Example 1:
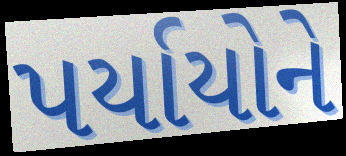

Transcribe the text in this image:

પર્યાયોને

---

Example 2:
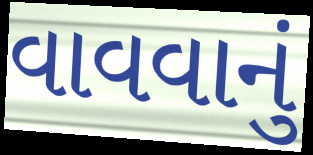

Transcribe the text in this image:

વાવવાનું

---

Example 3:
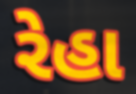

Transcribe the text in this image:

રેહા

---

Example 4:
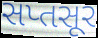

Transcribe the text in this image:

સપ્તસૂર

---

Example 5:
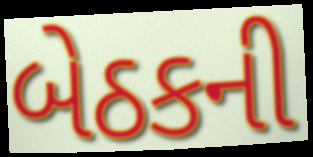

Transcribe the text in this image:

બેઠકની